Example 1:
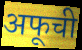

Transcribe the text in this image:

अफूची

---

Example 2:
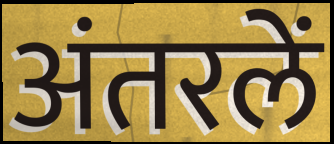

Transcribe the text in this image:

अंतरलें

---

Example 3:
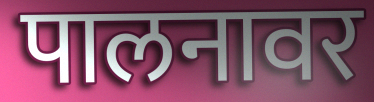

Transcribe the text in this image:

पालनावर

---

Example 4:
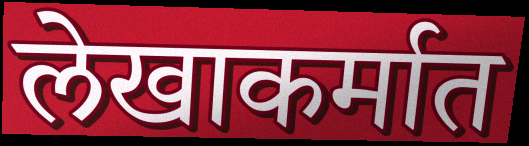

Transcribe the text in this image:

लेखाकर्मात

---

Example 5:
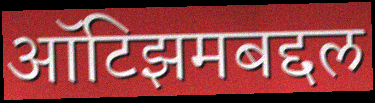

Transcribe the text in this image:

ऑटिझमबद्दल